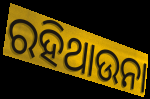
ରହିଥାଉନା